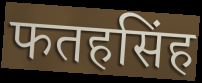
फतहसिंह